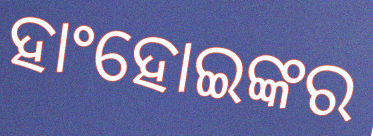
ହାଂହୋଇଙ୍କର